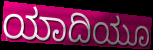
ಯಾದಿಯೂ